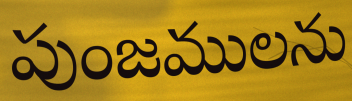
పుంజములను